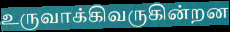
உருவாக்கிவருகின்றன